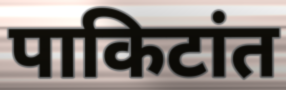
पाकिटांत